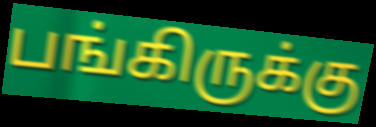
பங்கிருக்கு